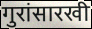
गुरांसारखी